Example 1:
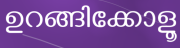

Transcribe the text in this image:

ഉറങ്ങിക്കോളൂ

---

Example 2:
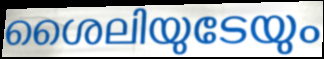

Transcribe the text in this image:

ശൈലിയുടേയും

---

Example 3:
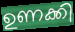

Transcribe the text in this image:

ഉണക്കി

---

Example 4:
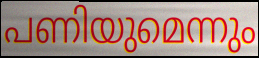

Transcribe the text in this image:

പണിയുമെന്നും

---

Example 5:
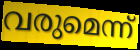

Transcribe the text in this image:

വരുമെന്ന്